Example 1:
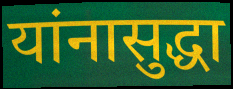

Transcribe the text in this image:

यांनासुद्धा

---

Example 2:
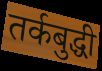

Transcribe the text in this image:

तर्कबुद्धी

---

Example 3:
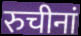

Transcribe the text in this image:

रुचीनां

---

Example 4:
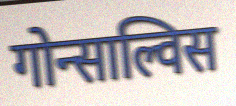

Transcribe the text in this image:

गोन्साल्विस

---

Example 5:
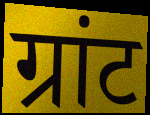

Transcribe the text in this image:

ग्रांट